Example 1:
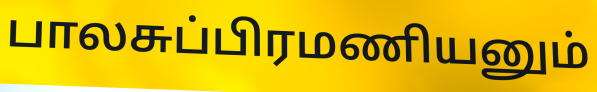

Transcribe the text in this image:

பாலசுப்பிரமணியனும்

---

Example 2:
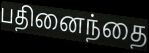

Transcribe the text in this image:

பதினைந்தை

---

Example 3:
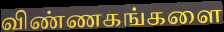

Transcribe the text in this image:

விண்ணகங்களை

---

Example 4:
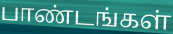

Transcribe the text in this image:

பாண்டங்கள்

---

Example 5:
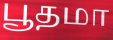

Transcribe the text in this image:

பூதமா